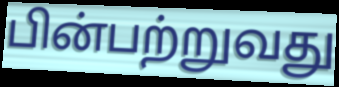
பின்பற்றுவது